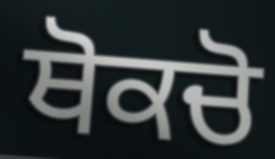
ਥੋਕਚੋ